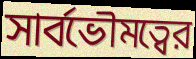
সার্বভৌমত্বের